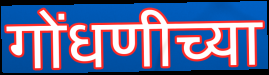
गोंधणीच्या